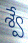
శ్వే